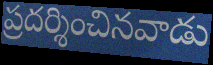
ప్రదర్శించినవాడు